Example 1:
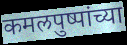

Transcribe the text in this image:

कमलपुष्पांच्या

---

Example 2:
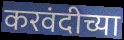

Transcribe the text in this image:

करवंदीच्या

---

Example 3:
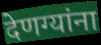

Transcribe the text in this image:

देणग्यांना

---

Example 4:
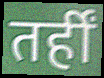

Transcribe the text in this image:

तर्हीं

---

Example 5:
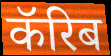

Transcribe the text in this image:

कॅरिब